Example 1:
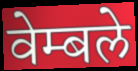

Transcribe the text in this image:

वेम्बले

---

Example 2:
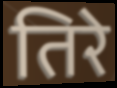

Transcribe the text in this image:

तिरे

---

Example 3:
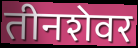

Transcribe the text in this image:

तीनशेवर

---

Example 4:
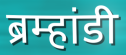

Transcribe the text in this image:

ब्रम्हांडी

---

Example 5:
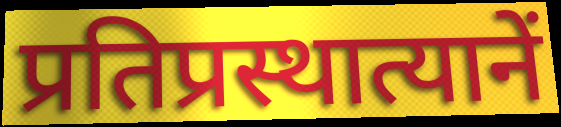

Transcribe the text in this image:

प्रतिप्रस्थात्यानें